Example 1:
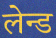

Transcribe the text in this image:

लेन्ड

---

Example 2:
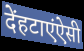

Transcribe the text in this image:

देंहटाएंऐसी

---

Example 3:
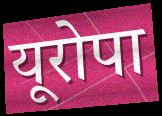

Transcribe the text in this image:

यूरोपा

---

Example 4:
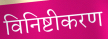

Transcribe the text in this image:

विनिष्टीकरण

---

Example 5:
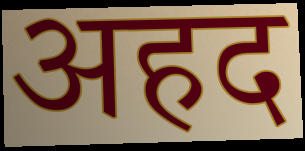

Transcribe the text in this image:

अहद